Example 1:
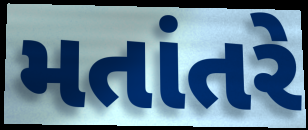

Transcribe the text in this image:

મતાંતરે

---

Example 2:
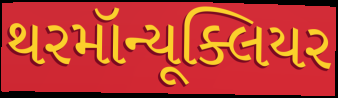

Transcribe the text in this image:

થરમૉન્યૂક્લિયર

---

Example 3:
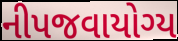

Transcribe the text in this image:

નીપજવાયોગ્ય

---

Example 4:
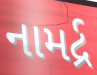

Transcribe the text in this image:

નામર્દ્ર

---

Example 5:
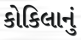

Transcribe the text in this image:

કોકિલાનું